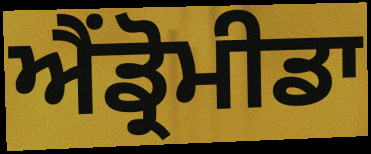
ਐਂਡ੍ਰੋਮੀਡਾ